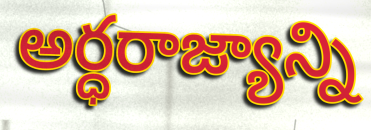
అర్ధరాజ్యాన్ని